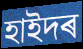
হাইদৰ